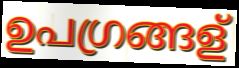
ഉപഗ്രങ്ങള്